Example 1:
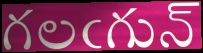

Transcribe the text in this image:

గలఁగున్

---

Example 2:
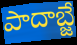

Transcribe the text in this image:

పాదాబ్జే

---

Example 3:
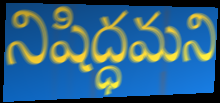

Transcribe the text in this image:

నిషిద్ధమని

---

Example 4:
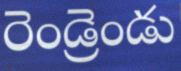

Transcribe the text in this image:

రెండ్రెండు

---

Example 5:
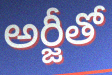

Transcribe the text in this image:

అర్జీతో